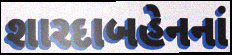
શારદાબહેનનાં